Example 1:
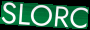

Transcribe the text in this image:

SLORC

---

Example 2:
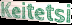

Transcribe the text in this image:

Keitetsi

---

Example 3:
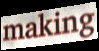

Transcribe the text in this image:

making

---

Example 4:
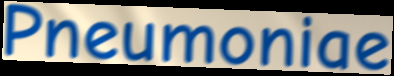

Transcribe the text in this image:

Pneumoniae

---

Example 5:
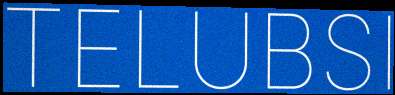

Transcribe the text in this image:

TELUBSI